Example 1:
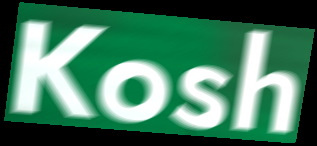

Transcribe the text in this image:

Kosh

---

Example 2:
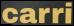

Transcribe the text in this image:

carri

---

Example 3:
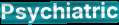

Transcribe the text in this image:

Psychiatric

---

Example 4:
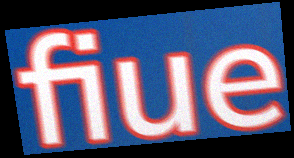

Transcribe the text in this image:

fiue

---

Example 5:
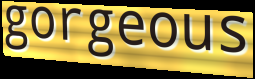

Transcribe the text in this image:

gorgeous